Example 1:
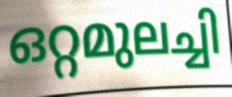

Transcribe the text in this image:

ഒറ്റമുലച്ചി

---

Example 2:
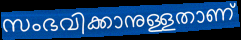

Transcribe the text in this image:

സംഭവിക്കാനുള്ളതാണ്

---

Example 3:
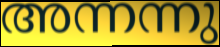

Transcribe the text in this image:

അന്നന്നു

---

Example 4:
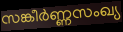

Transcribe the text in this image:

സങ്കീർണ്ണസംഖ്യ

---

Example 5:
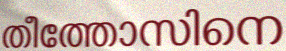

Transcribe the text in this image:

തീത്തോസിനെ